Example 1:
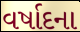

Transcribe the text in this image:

વર્ષાદના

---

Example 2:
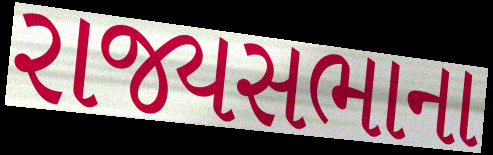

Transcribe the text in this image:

રાજ્યસભાના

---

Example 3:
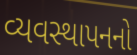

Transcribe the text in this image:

વ્યવસ્થાપનનો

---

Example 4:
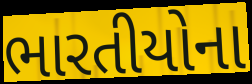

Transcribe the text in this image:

ભારતીયોના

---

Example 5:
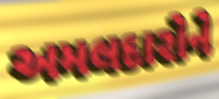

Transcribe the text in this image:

અમલદારોને